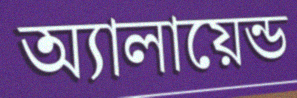
অ্যালায়েন্ড